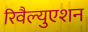
रिवैल्युएशन